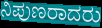
ನಿಪುಣರಾದರು